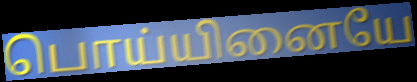
பொய்யினையே